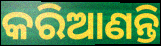
କରିଆଣନ୍ତି